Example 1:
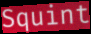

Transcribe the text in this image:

Squint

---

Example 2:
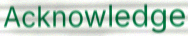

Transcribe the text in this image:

Acknowledge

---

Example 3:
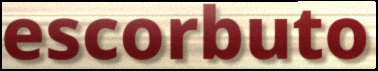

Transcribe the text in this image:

escorbuto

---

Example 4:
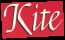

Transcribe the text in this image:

Kite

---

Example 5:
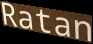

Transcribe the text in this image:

Ratan